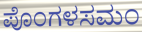
ಪೊಂಗಳಸಮಂ